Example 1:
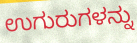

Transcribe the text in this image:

ಉಗುರುಗಳನ್ನು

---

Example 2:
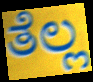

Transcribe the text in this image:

ತೆಲ್ಲ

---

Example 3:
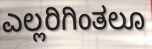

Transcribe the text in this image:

ಎಲ್ಲರಿಗಿಂತಲೂ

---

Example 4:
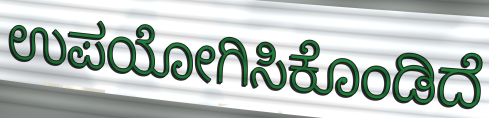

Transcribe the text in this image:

ಉಪಯೋಗಿಸಿಕೊಂಡಿದೆ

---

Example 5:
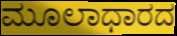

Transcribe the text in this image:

ಮೂಲಾಧಾರದ